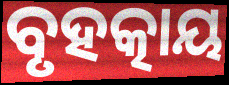
ବୃହତ୍କାୟ